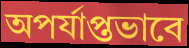
অপর্যাপ্তভাবে